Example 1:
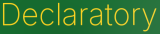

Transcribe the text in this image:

Declaratory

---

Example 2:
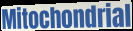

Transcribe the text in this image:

Mitochondrial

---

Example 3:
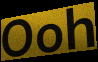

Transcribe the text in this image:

Ooh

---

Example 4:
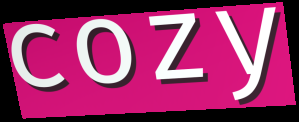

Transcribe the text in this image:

cozy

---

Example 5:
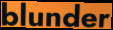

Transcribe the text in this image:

blunder